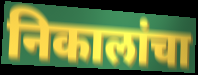
निकालांचा